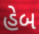
હેબ